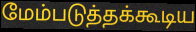
மேம்படுத்தக்கூடிய